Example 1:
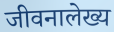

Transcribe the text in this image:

जीवनालेख्य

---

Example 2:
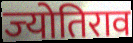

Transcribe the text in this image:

ज्‍योतिराव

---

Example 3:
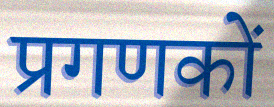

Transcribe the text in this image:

प्रगणकों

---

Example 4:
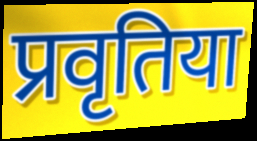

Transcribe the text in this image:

प्रवृतिया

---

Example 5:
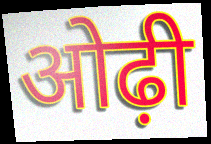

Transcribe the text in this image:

ओढ़ी